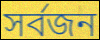
সৰ্বজন